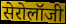
सेरोलॉजी